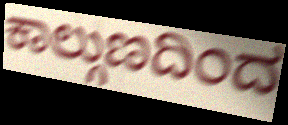
ಕಾಲ್ಗುಣದಿಂದ